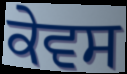
ਕੇਵਸ